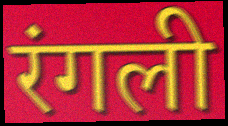
रंगली